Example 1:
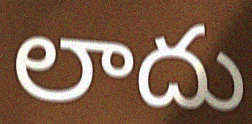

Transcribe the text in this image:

లాదు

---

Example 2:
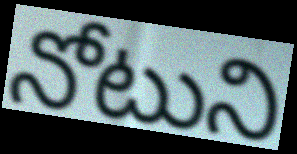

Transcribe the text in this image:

నోటుని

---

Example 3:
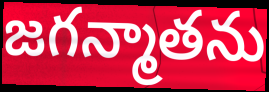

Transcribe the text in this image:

జగన్మాతను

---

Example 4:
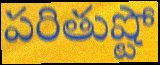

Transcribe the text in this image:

పరితుష్టో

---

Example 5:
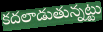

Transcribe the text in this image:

కదలాడుతున్నట్టు